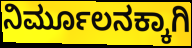
ನಿರ್ಮೂಲನಕ್ಕಾಗಿ